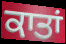
ਕਾਤਾਂ